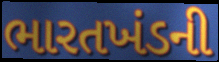
ભારતખંડની